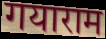
गयाराम